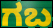
ಗಬ